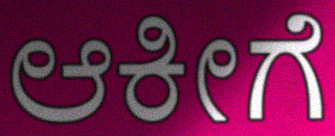
ಆಕೀಗೆ